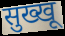
सुख्खू